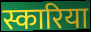
स्कारिया